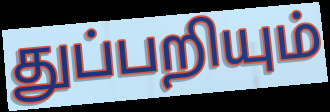
துப்பறியும்